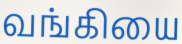
வங்கியை